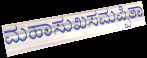
ಮಹಾಸುಖಸಮಪ್ಪಿತಾ